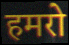
हमरो